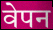
वेपन